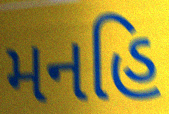
મનહિ